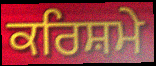
ਕਰਿਸ਼ਮੇ